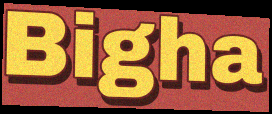
Bigha